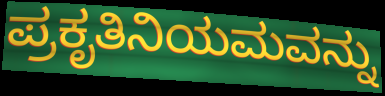
ಪ್ರಕೃತಿನಿಯಮವನ್ನು